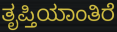
ತೃಪ್ತಿಯಾಂತಿರೆ